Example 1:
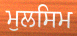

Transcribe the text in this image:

ਮੁਲਸਿਮ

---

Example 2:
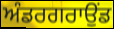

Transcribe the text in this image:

ਅੰਡਰਗਰਾਉਂਡ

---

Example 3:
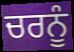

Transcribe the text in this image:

ਚਰਨੂੰ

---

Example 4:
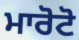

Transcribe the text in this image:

ਮਾਰੋਟੋ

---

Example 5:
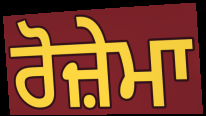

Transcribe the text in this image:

ਰੋਜ਼ੇਮਾ